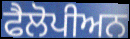
ਫੈਲੋਪੀਅਨ